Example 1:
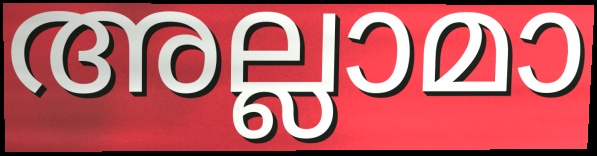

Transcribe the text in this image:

അല്ലാമാ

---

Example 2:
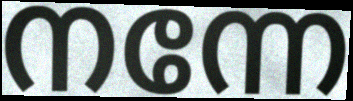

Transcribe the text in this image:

നന്നേ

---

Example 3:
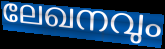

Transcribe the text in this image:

ലേഖനവും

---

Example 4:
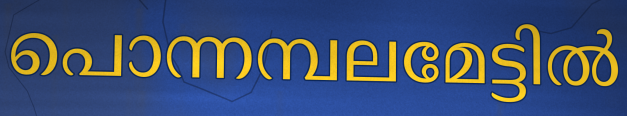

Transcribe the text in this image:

പൊന്നമ്പലമേട്ടിൽ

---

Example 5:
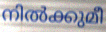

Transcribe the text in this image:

നിൽക്കുമീ